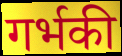
गर्भकी